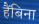
हैंबिना